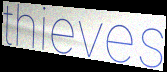
thieves